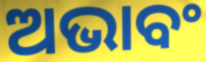
ଅଭାବଂ